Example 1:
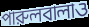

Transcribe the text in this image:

পারুলবালাও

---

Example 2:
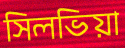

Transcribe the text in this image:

সিলভিয়া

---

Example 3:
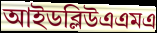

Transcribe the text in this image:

আইডব্লিউএএমএ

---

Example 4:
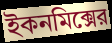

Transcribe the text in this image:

ইকনমিক্সের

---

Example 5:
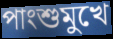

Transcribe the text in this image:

পাংশুমুখে